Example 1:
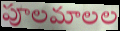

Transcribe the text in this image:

పూలమాలల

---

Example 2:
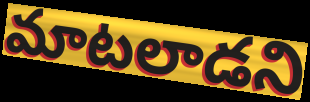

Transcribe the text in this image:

మాటలాడని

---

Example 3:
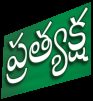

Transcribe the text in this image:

ప్రత్యక్ష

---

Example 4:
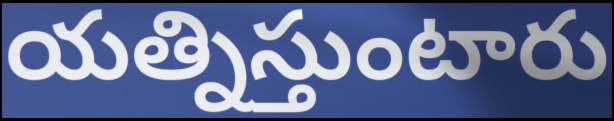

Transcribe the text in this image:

యత్నిస్తుంటారు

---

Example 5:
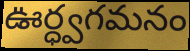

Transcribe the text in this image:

ఊర్ధ్వగమనం